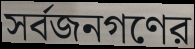
সর্বজনগণের